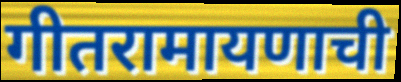
गीतरामायणाची